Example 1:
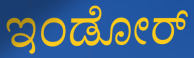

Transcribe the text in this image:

ಇಂಡೋರ್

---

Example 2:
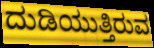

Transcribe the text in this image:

ದುಡಿಯುತ್ತಿರುವ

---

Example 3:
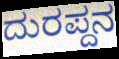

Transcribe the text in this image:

ದುರಪ್ದನ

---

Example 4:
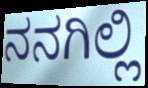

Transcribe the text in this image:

ನನಗಿಲ್ಲಿ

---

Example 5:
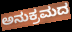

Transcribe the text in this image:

ಅನುಕ್ರಮದ